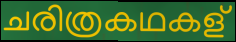
ചരിത്രകഥകള്